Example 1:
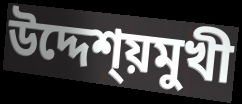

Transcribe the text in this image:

উদ্দেশ্য়মুখী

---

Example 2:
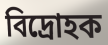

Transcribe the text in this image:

বিদ্ৰোহক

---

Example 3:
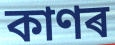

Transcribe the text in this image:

কাণৰ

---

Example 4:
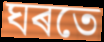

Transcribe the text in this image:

ঘৰতে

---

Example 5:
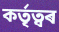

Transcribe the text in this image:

কৰ্তৃত্বৰ